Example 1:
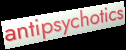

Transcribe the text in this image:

antipsychotics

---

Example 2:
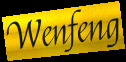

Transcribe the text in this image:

Wenfeng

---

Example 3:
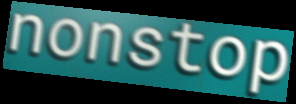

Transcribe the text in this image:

nonstop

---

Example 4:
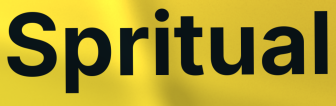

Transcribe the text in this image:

Spritual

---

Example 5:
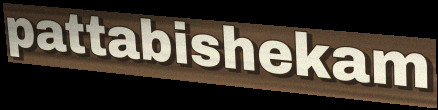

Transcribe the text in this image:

pattabishekam